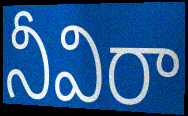
నీవిరా